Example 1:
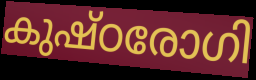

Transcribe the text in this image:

കുഷ്ഠരോഗി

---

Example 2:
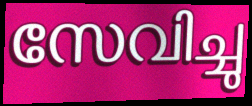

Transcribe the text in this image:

സേവിച്ചു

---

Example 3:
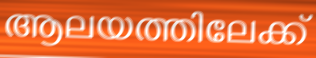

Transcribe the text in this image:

ആലയത്തിലേക്ക്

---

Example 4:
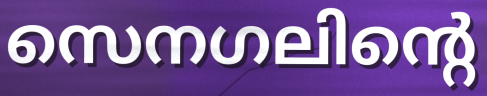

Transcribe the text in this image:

സെനഗലിന്റെ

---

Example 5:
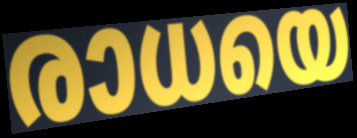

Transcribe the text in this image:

രാധയെ